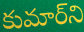
కుమార్‌ని